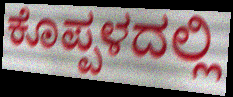
ಕೊಪ್ಪಳದಲ್ಲಿ